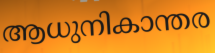
ആധുനികാന്തര